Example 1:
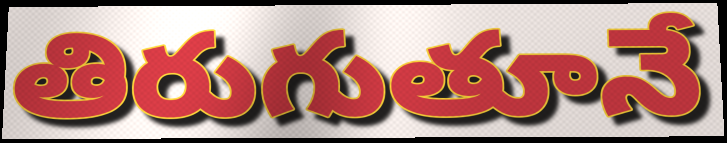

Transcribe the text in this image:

తిరుగుతూనే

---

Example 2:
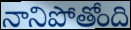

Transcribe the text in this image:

నానిపోతోంది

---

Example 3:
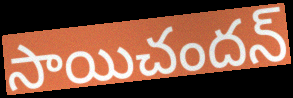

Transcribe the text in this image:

సాయిచందన్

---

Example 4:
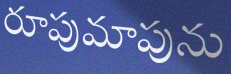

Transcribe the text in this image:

రూపుమాపును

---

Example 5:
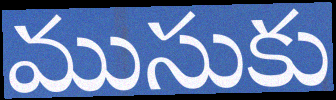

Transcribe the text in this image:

ముసుకు